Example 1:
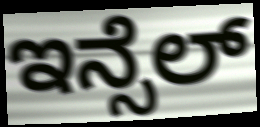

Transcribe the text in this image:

ಇನ್ಸೆಲ್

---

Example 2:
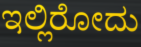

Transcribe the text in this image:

ಇಲ್ಲಿರೋದು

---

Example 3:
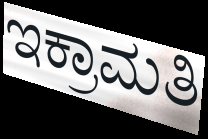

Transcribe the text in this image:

ಇಕ್ರಾಮತಿ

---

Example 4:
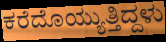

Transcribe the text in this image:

ಕರೆದೊಯ್ಯುತ್ತಿದ್ದಳು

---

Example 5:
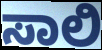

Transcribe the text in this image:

ಸಾಲಿ